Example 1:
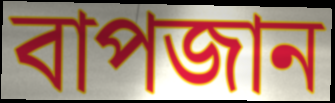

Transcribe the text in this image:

বাপজান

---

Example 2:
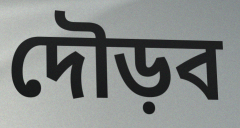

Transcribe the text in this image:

দৌড়ব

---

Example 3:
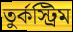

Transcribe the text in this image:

তুর্কস্ট্রিম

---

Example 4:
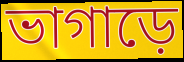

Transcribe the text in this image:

ভাগাড়ে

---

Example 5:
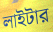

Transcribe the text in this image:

লাইটার